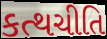
કત્થચીતિ